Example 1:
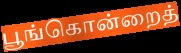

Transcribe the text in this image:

பூங்கொன்றைத்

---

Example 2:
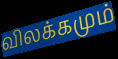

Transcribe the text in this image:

விலக்கமும்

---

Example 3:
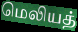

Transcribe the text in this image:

மெலியத்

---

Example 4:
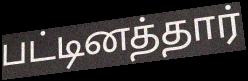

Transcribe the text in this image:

பட்டினத்தார்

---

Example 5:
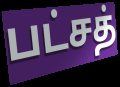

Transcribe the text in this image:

பட்சத்